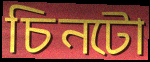
চিনটো